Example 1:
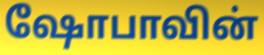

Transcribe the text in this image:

ஷோபாவின்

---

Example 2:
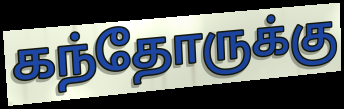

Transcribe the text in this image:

கந்தோருக்கு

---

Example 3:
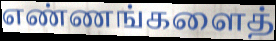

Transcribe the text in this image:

எண்ணங்களைத்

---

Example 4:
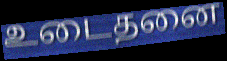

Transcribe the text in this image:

உடைதனை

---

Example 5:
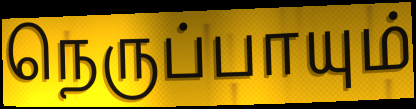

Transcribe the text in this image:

நெருப்பாயும்